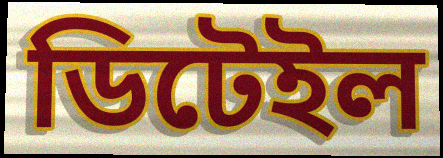
ডিটেইল